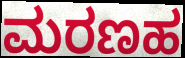
ಮರಣಹ